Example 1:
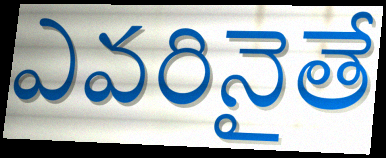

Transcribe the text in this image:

ఎవరినైతే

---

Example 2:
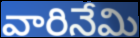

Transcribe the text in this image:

వారినేమి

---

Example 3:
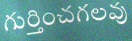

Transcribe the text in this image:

గుర్తించగలవు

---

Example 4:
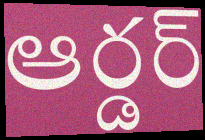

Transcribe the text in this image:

ఆర్డర్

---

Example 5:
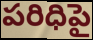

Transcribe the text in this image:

పరిధిపై